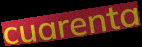
cuarenta